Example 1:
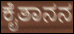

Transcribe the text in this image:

ಕೈತಾನನ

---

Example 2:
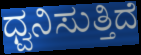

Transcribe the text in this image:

ಧ್ವನಿಸುತ್ತಿದೆ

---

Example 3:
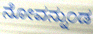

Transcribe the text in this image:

ನೋವನ್ನುಂಡ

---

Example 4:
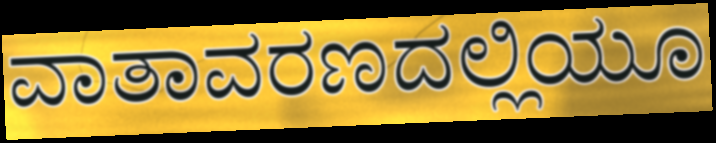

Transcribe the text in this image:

ವಾತಾವರಣದಲ್ಲಿಯೂ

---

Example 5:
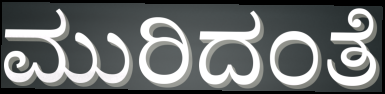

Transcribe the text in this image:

ಮುರಿದಂತೆ